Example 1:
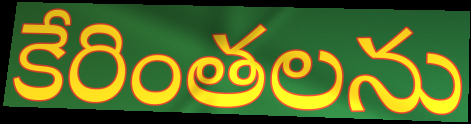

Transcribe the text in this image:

కేరింతలను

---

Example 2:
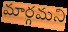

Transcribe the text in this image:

మార్గమని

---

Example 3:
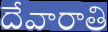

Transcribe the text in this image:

దేవారాతి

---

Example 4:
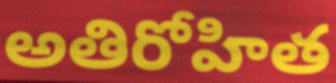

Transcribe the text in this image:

అతిరోహిత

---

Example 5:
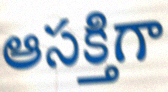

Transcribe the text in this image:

ఆసక్తిగా